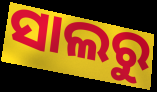
ସାଲରୁ